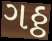
ગઠ્ઠ